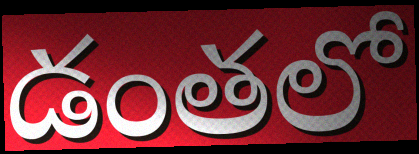
డంతలో